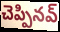
చెప్పినవ్